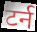
टर्न